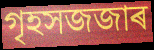
গৃহসজজাৰ